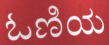
ಓಣಿಯ